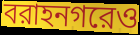
বরাহনগরেও